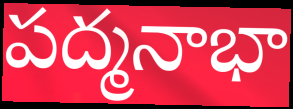
పద్మనాభా